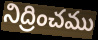
నిద్రించము